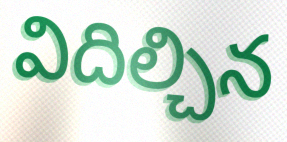
విదిల్చిన